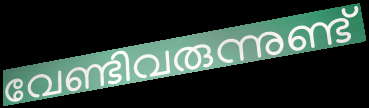
വേണ്ടിവരുന്നുണ്ട്